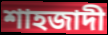
শাহজাদী